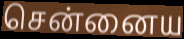
சென்னைய